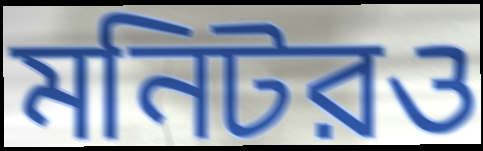
মনিটরও